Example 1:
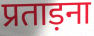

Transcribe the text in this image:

प्रताड़ना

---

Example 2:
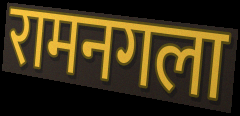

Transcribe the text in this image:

रामनगला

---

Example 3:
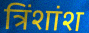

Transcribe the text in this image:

त्रिंशांश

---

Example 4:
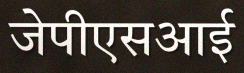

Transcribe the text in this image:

जेपीएसआई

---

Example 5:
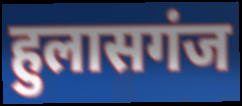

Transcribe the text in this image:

हुलासगंज